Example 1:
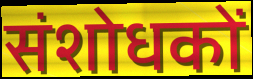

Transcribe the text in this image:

संशोधकों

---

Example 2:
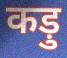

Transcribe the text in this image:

कड़ु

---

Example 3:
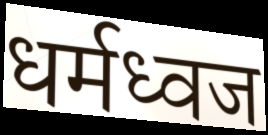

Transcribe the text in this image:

धर्मध्वज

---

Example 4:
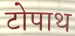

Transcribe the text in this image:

टोपाथ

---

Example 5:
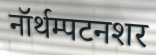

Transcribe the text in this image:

नॉर्थम्पटनशर